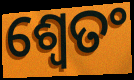
ଶ୍ଵେତଂ